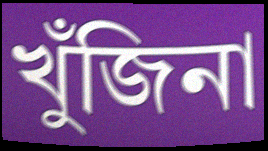
খুঁজিনা